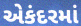
એકંદરમાં